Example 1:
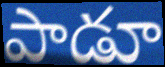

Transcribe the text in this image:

పాడూ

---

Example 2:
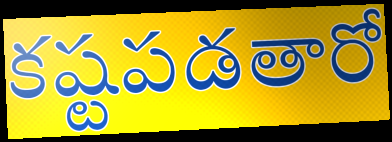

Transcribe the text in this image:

కష్టపడతారో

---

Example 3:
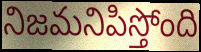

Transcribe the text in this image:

నిజమనిపిస్తోంది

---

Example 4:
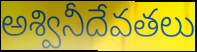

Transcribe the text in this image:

అశ్వినీదేవతలు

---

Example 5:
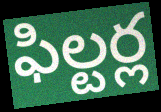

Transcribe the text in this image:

ఫిల్టర్ల